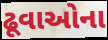
ઢૂવાઓના